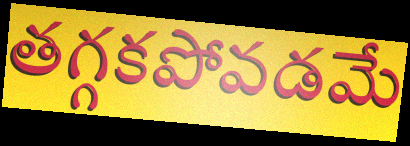
తగ్గకపోవడమే